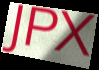
JPX